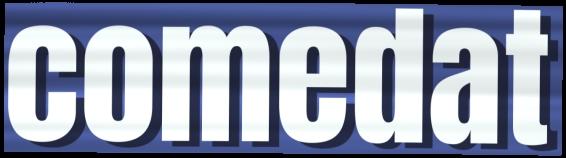
comedat